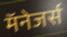
मॅनेजर्स